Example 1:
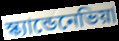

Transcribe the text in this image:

স্ক্যান্ডেনেভিয়া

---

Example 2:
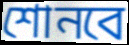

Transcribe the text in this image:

শোনবে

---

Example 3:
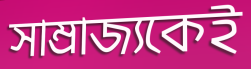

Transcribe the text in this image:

সাম্রাজ্যকেই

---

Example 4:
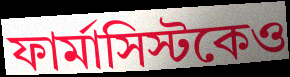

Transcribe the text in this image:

ফার্মাসিস্টকেও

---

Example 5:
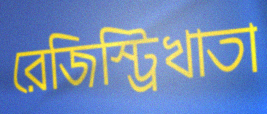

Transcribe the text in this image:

রেজিস্ট্রিখাতা